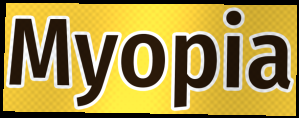
Myopia